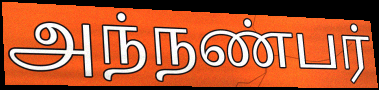
அந்நண்பர்